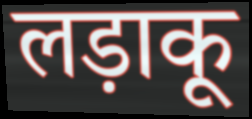
लड़ाकू